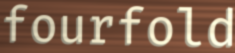
fourfold